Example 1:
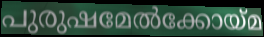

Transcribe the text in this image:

പുരുഷമേൽക്കോയ്മ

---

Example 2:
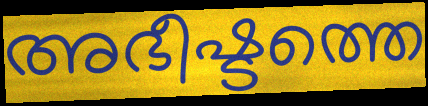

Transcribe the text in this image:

അഭീഷ്ടത്തെ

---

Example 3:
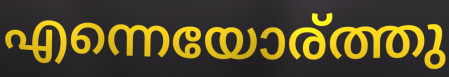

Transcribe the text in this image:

എന്നെയോര്ത്തു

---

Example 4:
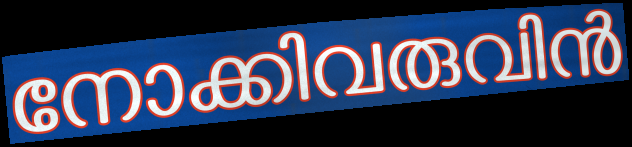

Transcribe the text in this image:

നോക്കിവരുവിൻ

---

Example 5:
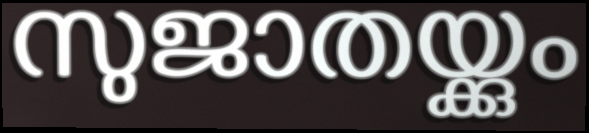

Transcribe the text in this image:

സുജാതയ്ക്കും